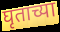
घृताच्या